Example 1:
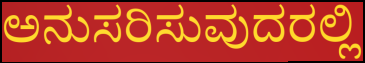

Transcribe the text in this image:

ಅನುಸರಿಸುವುದರಲ್ಲಿ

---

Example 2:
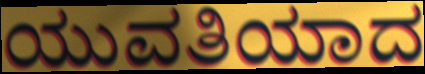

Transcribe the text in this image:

ಯುವತಿಯಾದ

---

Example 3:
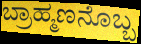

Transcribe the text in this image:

ಬ್ರಾಹ್ಮಣನೊಬ್ಬ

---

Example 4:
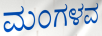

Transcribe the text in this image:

ಮಂಗಳವ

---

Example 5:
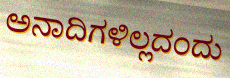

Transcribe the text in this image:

ಅನಾದಿಗಳಿಲ್ಲದಂದು